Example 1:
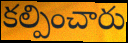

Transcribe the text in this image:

కల్పించారు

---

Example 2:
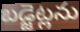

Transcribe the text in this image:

బడ్జెట్లను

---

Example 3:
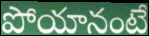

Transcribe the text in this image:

పోయానంటే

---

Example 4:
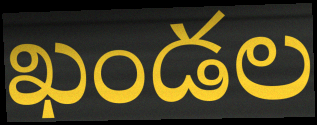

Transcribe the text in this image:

ఖండల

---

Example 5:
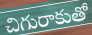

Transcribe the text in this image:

చిగురాకుతో